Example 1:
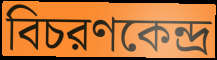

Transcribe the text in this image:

বিচরণকেন্দ্র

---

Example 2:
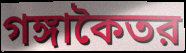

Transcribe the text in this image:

গঙ্গাকৈতর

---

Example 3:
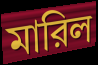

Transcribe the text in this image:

মারিল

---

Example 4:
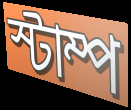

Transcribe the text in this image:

স্টাম্প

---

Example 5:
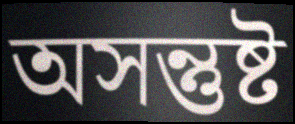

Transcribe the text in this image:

অসন্তুষ্ট